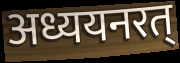
अध्ययनरत्